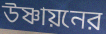
উষ্ণায়নের